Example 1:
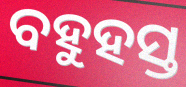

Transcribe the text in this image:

ବହୁହସ୍ତ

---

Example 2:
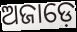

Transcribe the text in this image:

ଅଜାଡ଼େ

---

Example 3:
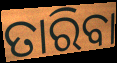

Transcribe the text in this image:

ତାରିବା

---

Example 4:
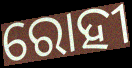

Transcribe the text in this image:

ରୋହୀ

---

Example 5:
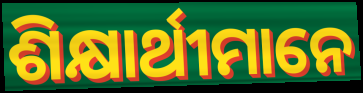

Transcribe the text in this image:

ଶିକ୍ଷାର୍ଥୀମାନେ